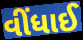
વીંધાઈ